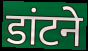
डांटने